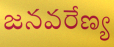
జనవరేణ్య